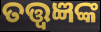
ତତ୍ତ୍ଵଜ୍ଞଙ୍କ